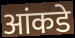
आंकडे